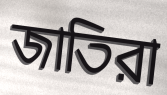
জাতিরা